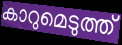
കാറുമെടുത്ത്